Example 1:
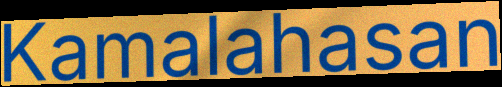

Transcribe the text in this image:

Kamalahasan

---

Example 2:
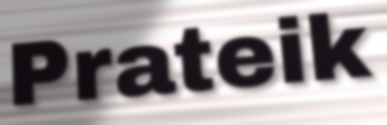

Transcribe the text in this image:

Prateik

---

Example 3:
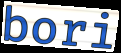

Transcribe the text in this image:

bori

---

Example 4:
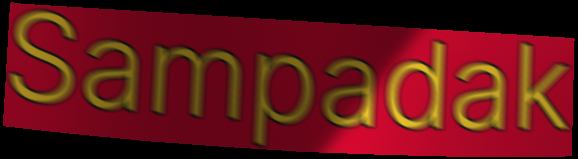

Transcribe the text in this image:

Sampadak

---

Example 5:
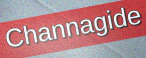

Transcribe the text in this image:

Channagide